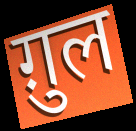
ग़ुल